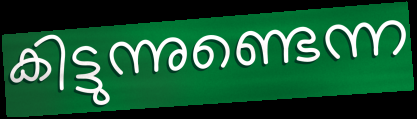
കിട്ടുന്നുണ്ടെന്ന